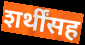
शर्थींसह